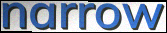
narrow